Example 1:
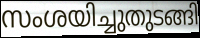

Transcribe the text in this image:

സംശയിച്ചുതുടങ്ങി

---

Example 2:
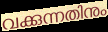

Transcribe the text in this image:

വക്കുന്നതിനും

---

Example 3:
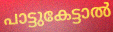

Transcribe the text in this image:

പാട്ടുകേട്ടാൽ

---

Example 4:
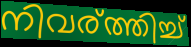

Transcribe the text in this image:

നിവര്ത്തിച്ച്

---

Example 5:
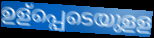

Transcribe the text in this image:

ഉള്പ്പെടെയുളള